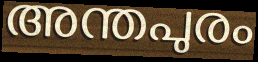
അന്തപുരം